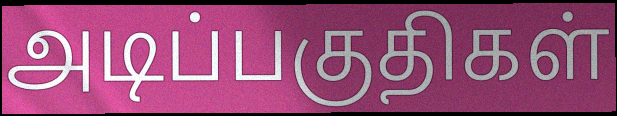
அடிப்பகுதிகள்